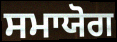
ਸਮਾਯੋਗ